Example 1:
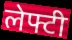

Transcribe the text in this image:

लेफ्टी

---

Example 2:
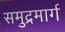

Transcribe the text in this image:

समुद्रमार्ग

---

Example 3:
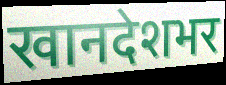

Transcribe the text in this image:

खानदेशभर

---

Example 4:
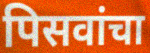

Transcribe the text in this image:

पिसवांचा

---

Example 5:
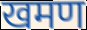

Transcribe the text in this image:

खमण